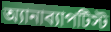
অ্যানাব্যাপটিস্ট